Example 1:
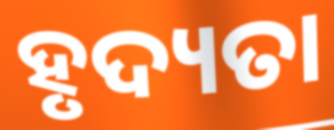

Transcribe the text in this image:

ହୃଦ୍ୟତା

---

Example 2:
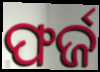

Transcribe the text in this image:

ଫର୍ଜ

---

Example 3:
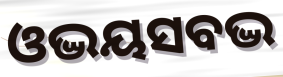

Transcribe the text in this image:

ଓଦ୍ଭୟସବଦ୍ଭ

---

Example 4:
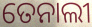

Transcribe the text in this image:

ତେନାଲୀ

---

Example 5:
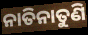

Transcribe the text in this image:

ନାତିନାତୁଣି